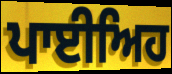
ਪਾਈਅਿਹ